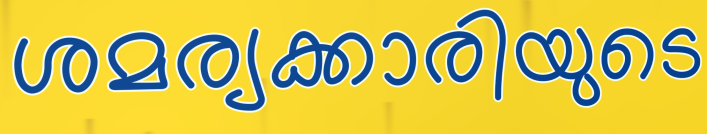
ശമര്യക്കാരിയുടെ